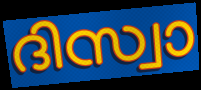
ദിസ്വാ